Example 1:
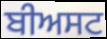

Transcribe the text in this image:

ਬੀਅਸਟ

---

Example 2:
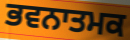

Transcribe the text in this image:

ਭਵਨਾਤਮਕ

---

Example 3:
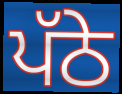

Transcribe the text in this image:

ਪੱਠੇ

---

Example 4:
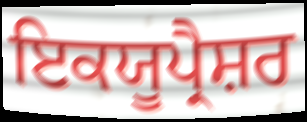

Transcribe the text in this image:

ਇਕਯੂਪ੍ਰੈਸ਼ਰ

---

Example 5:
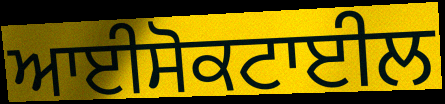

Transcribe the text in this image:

ਆਈਸੋਕਟਾਈਲ